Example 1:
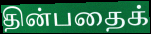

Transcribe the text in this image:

தின்பதைக்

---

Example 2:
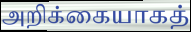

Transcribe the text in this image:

அறிக்கையாகத்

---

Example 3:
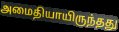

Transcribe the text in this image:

அமைதியாயிருந்தது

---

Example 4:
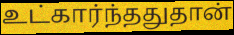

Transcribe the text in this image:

உட்கார்ந்ததுதான்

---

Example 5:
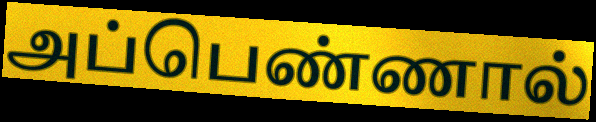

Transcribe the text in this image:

அப்பெண்ணால்